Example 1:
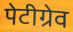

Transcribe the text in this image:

पेटीग्रेव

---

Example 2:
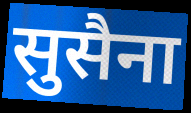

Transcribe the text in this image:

सुसैना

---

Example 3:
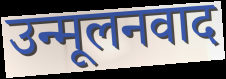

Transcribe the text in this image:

उन्मूलनवाद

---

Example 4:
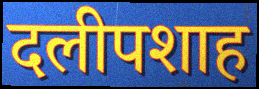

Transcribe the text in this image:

दलीपशाह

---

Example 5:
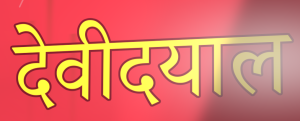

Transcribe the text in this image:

देवीदयाल